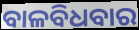
ବାଳବିଧବାର